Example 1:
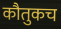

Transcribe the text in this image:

कौतुकच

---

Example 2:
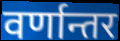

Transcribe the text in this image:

वर्णान्तर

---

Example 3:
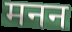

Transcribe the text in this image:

मनन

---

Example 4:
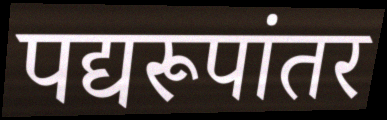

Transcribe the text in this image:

पद्यरूपांतर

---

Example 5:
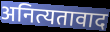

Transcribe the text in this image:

अनित्यतावाद